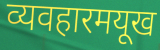
व्यवहारमयूख